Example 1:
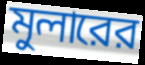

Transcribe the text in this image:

মুলারের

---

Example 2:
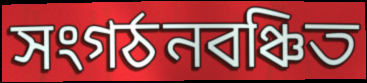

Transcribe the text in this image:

সংগঠনবঞ্চিত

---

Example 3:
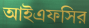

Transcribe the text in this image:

আইএফসির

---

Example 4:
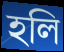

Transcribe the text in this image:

হলি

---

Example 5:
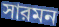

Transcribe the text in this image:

সারমন